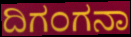
ದಿಗಂಗನಾ